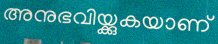
അനുഭവിയ്ക്കുകയാണ്